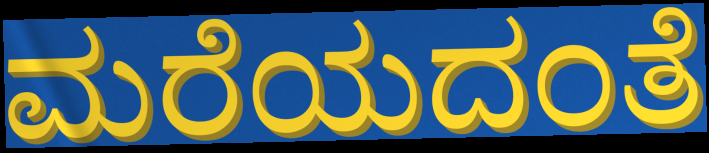
ಮರೆಯದಂತೆ